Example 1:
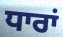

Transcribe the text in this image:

ਧਾਰਾਂ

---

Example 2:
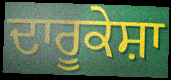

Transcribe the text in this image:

ਦਾਰੂਕੇਸ਼ਾ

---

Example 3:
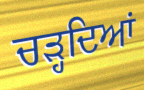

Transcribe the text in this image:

ਚੜ੍ਹਦਿਆਂ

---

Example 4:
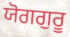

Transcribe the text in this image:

ਯੋਗਗੁਰੂ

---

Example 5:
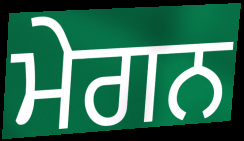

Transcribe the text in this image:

ਮੇਗਨ